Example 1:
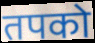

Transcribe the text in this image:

तपको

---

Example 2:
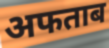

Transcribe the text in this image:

अफताब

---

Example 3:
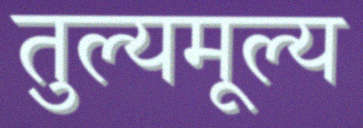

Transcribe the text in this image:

तुल्यमूल्य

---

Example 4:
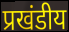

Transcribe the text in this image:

प्रखंडीय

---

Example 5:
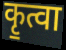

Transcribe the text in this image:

कृ॒त्वा